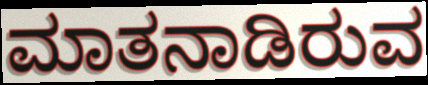
ಮಾತನಾಡಿರುವ